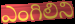
ఎంగిలిని